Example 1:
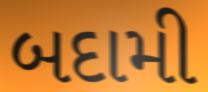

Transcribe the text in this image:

બદામી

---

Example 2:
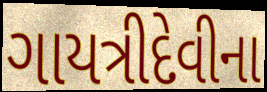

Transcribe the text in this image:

ગાયત્રીદેવીના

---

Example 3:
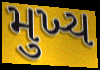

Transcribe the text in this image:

મુખ્ય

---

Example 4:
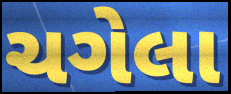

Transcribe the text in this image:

ચગેલા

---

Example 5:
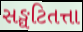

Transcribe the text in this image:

સઙ્ઘટિતત્તા